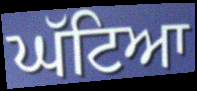
ਘੱਟਿਆ